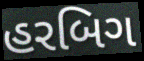
હરબિગ